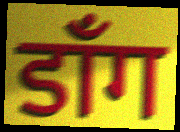
डाँग